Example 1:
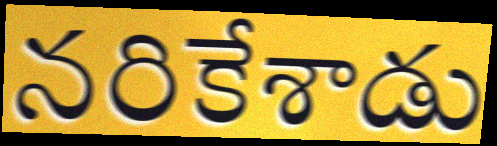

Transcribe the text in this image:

నరికేశాడు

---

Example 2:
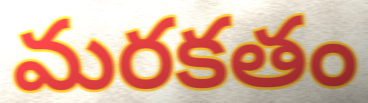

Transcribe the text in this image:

మరకతం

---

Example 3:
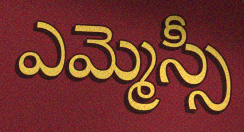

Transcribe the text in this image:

ఎమ్మెస్సీ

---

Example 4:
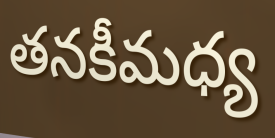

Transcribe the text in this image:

తనకీమధ్య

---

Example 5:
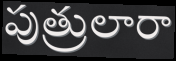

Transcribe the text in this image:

పుత్రులారా